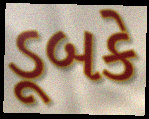
ડૂબકે